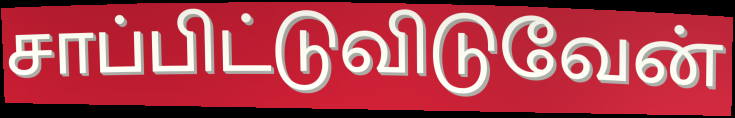
சாப்பிட்டுவிடுவேன்